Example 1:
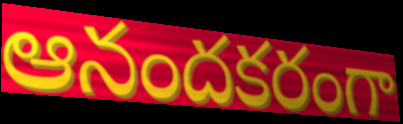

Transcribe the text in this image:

ఆనందకరంగా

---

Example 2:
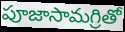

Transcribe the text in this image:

పూజాసామగ్రితో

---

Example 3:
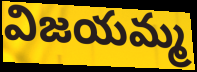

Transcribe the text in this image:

విజయమ్మ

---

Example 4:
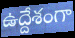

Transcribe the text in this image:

ఉద్దేశంగా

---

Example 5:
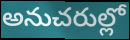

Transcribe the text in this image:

అనుచరుల్లో